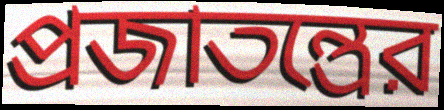
প্রজাতন্ত্রের